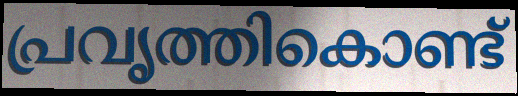
പ്രവൃത്തികൊണ്ട്